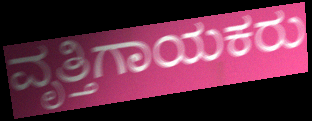
ವೃತ್ತಿಗಾಯಕರು